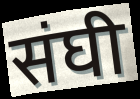
संघी